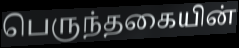
பெருந்தகையின்